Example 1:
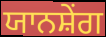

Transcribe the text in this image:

ਯਾਨਸ਼ੇਂਗ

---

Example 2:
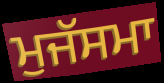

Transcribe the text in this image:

ਮੁਜੱਸਮਾ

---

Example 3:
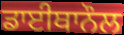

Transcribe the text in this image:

ਡਾਈਥਾਨੌਲ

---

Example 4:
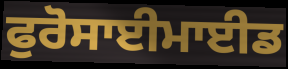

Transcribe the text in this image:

ਫੁਰੋਸਾਈਮਾਈਡ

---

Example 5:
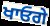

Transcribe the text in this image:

ਖਾਓਗੇ